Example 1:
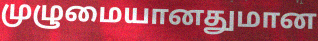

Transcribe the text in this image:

முழுமையானதுமான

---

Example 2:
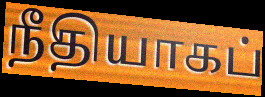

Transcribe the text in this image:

நீதியாகப்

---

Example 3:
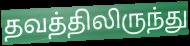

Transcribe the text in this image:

தவத்திலிருந்து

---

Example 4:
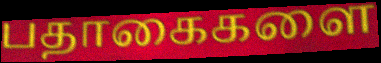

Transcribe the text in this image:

பதாகைகளை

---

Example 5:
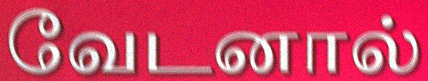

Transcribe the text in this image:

வேடனால்